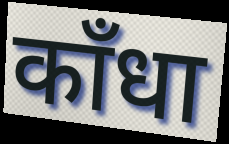
काँधा